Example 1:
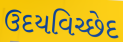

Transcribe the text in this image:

ઉદયવિચ્છેદ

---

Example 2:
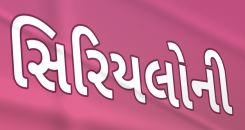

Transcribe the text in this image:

સિરિયલોની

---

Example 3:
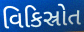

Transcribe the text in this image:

વિકિસ્રોત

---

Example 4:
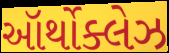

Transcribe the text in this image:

ઑર્થોક્લેઝ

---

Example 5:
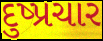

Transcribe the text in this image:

દુષ્પ્રચાર